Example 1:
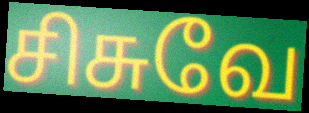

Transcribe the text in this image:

சிசுவே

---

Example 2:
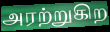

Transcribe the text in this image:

அரற்றுகிற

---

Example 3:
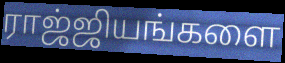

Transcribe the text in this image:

ராஜ்ஜியங்களை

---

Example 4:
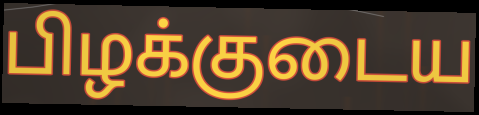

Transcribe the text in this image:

பிழக்குடைய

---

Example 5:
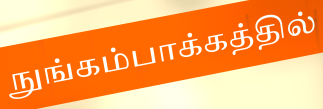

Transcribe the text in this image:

நுங்கம்பாக்கத்தில்